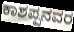
ಕಾಶಪ್ಪನವರ